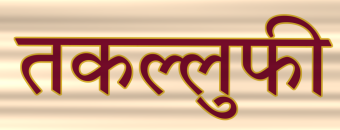
तकल्लुफी